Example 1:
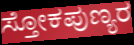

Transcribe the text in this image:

ಸ್ತೋಕಪುಣ್ಯರ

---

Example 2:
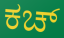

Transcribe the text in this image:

ಕಚ್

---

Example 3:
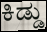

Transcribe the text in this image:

ಕಿಡ್ಡು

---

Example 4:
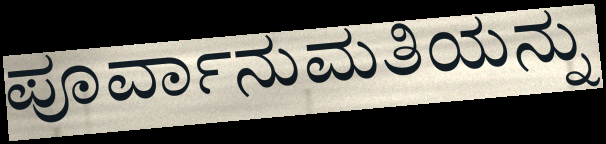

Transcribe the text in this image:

ಪೂರ್ವಾನುಮತಿಯನ್ನು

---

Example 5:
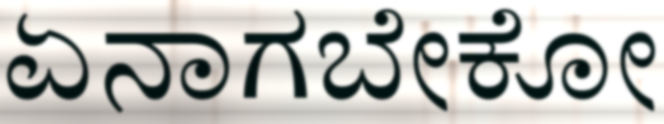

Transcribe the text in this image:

ಏನಾಗಬೇಕೋ